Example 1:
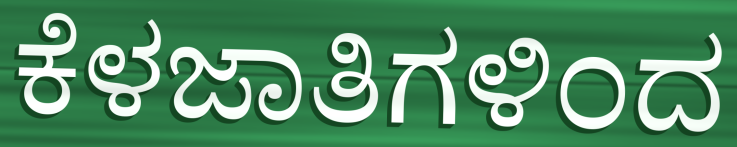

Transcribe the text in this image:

ಕೆಳಜಾತಿಗಳಿಂದ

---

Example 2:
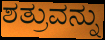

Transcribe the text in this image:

ಶತ್ರುವನ್ನು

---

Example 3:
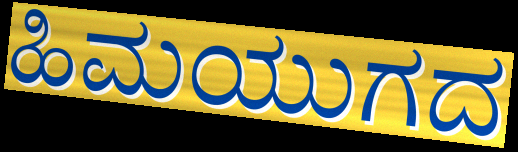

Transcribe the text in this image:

ಹಿಮಯುಗದ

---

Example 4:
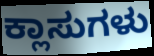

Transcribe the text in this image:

ಕ್ಲಾಸುಗಳು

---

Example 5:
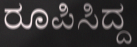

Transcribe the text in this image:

ರೂಪಿಸಿದ್ದ